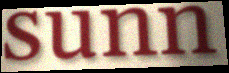
sunn